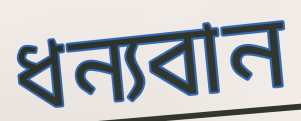
ধন্যবান